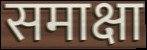
समाक्षा